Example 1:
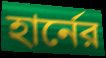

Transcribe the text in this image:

হার্নের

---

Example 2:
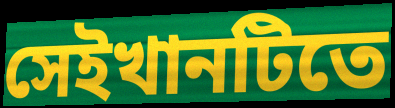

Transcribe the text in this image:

সেইখানটিতে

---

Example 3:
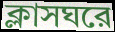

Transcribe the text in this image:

ক্লাসঘরে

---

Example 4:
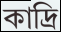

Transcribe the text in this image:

কাদ্রি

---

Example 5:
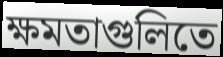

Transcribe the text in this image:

ক্ষমতাগুলিতে